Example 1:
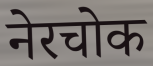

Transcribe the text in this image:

नेरचोक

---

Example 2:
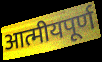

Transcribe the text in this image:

आत्मीयपूर्ण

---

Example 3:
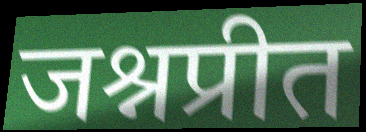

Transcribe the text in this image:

जश्नप्रीत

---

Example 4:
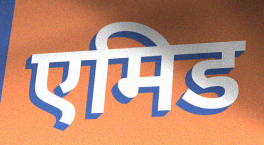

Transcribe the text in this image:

एमिड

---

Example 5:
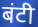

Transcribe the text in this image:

बंटी